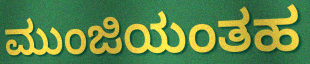
ಮುಂಜಿಯಂತಹ